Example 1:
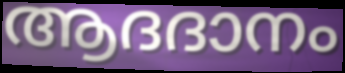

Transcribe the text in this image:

ആദദാനം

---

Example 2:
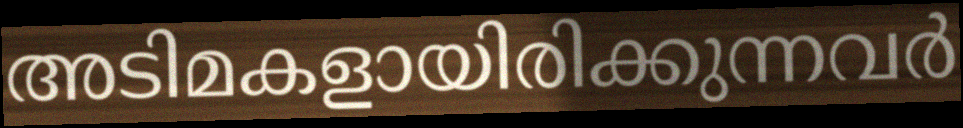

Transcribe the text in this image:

അടിമകളായിരിക്കുന്നവർ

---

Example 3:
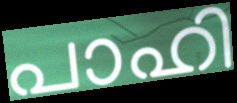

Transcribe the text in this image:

പാഹി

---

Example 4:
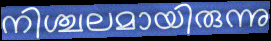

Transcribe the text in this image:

നിശ്ചലമായിരുന്നു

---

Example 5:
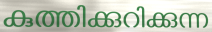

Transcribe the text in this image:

കുത്തിക്കുറിക്കുന്ന